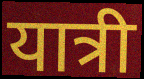
यात्री